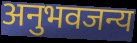
अनुभवजन्य